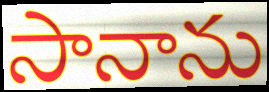
సానాను